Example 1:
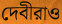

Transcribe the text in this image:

দেবীরাও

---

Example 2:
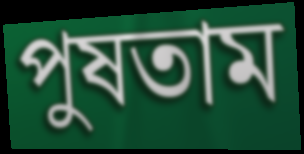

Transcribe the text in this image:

পুষতাম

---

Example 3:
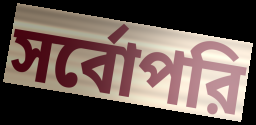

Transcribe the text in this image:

সর্বোপরি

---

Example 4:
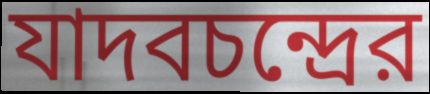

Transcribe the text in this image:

যাদবচন্দ্রের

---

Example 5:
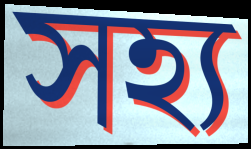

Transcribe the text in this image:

সহ্য